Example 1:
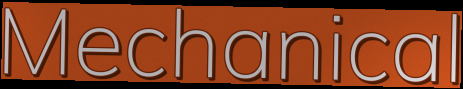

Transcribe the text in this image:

Mechanical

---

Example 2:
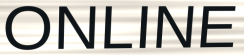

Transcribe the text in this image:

ONLINE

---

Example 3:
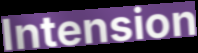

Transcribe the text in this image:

Intension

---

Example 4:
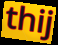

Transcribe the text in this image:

thij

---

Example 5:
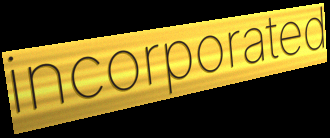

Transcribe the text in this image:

incorporated